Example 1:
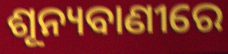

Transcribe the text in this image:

ଶୂନ୍ୟବାଣୀରେ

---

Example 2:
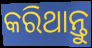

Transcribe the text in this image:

କରିଥାନ୍ତୁ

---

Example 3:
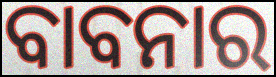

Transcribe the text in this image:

ବାବନାର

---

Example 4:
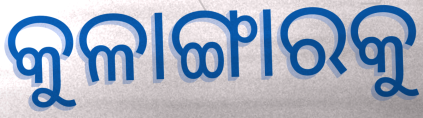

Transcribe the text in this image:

କୁଳାଙ୍ଗାରକୁ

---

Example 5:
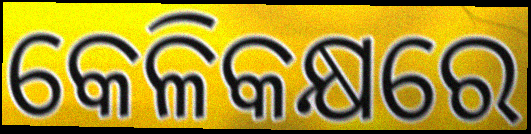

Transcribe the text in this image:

କେଳିକକ୍ଷରେ